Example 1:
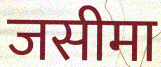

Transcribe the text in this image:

जसीमा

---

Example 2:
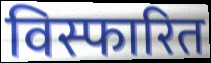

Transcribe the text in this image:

विस्फारित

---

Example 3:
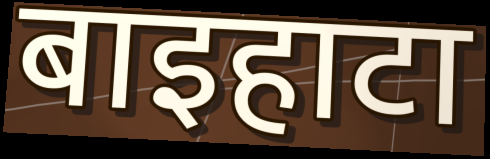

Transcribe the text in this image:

बाइहाटा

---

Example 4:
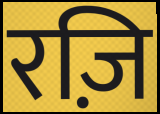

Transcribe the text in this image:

रज़ि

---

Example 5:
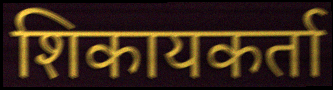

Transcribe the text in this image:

शिकायकर्ता